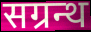
सग्रन्थ